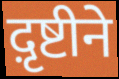
द़ृष्टीने